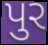
પુર